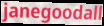
janegoodall